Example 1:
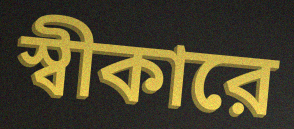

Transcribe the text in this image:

স্বীকারে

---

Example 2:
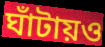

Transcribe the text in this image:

ঘাঁটায়ও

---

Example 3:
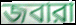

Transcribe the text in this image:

জবারা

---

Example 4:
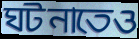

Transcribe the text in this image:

ঘটনাতেও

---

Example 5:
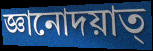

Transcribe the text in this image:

জ্ঞানোদয়াত্